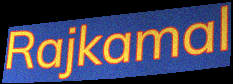
Rajkamal